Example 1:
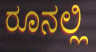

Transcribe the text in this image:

ರೂನಲ್ಲಿ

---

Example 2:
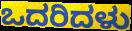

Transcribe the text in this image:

ಒದರಿದಳು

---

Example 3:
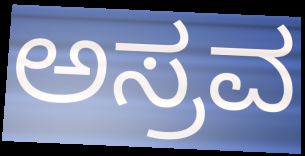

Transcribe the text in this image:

ಅಸ್ರವ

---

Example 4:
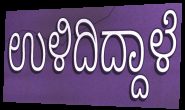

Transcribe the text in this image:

ಉಳಿದಿದ್ದಾಳೆ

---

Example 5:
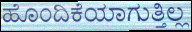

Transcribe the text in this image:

ಹೊಂದಿಕೆಯಾಗುತ್ತಿಲ್ಲ